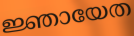
ജ്ഞായേത